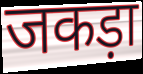
जकड़ा